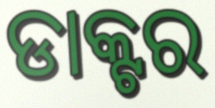
ଡାକ୍ଟର